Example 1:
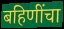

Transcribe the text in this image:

बहिणींचा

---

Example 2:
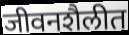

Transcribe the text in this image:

जीवनशैलीत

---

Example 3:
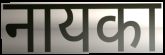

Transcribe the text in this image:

नायका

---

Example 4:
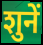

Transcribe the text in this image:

शुनें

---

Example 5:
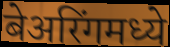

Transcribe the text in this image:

बेअरिंगमध्ये